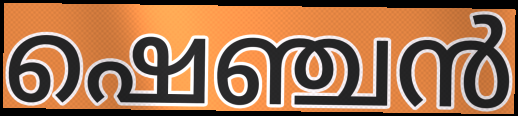
ഷെഞ്ചൻ